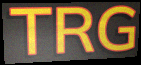
TRG